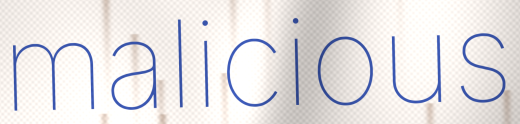
malicious